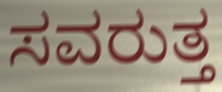
ಸವರುತ್ತ